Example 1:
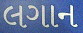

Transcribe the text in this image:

લગાન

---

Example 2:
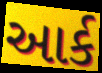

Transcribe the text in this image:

આર્ક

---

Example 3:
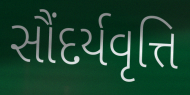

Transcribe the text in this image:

સૌંદર્યવૃત્તિ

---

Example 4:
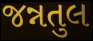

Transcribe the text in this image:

જન્નતુલ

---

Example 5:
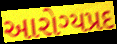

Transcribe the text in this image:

આરોગ્યપ્રદ